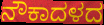
ನೌಕಾದಳದ